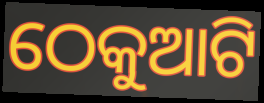
ଠେକୁଆଟି